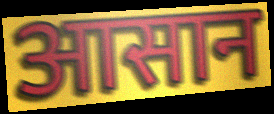
आसान